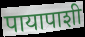
पायापाशी